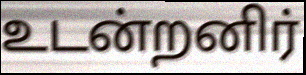
உடன்றனிர்